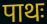
पाथः